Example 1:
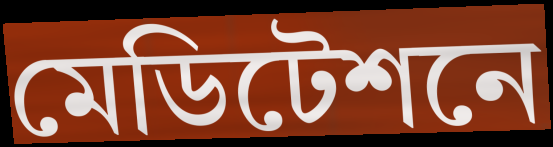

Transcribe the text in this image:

মেডিটেশনে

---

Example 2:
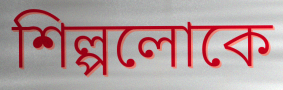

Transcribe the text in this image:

শিল্পলোকে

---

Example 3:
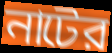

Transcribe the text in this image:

নাটের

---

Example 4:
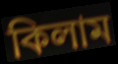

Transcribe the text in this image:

কিলাম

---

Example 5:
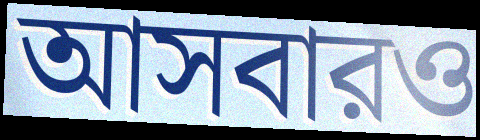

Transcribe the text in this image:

আসবারও